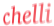
chelli